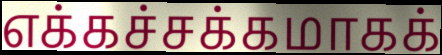
எக்கச்சக்கமாகக்